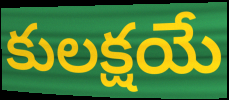
కులక్షయే